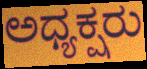
ಅಧ್ಯಕ್ಷರು